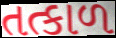
તત્કાળ